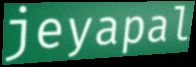
jeyapal